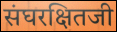
संघरक्षितजी